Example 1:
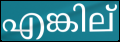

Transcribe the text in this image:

എങ്കില്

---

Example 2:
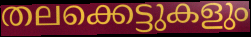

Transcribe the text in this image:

തലക്കെട്ടുകളും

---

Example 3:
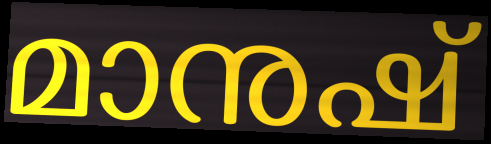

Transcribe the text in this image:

മാനുഷ്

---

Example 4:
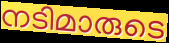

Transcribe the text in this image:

നടിമാരുടെ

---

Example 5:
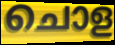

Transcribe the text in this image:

ചൊള